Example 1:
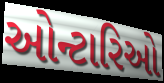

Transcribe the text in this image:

ઓન્ટારિઓ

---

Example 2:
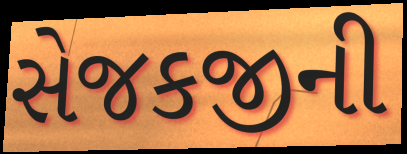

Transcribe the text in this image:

સેજકજીની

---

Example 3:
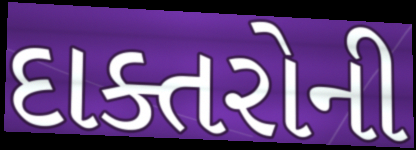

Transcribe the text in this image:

દાક્તરોની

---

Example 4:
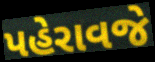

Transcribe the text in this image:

પહેરાવજે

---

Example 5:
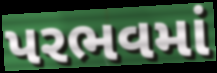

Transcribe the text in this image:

પરભવમાં